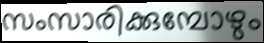
സംസാരിക്കുമ്പോഴും